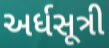
અર્ધસૂત્રી